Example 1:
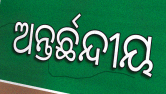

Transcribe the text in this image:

ଅନ୍ତର୍ଛନ୍ଦୀୟ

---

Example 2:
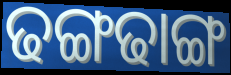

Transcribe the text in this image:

ଢଙ୍ଗଢାଙ୍ଗ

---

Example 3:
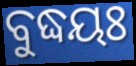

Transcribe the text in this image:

ବୁଦ୍ଧୟଃ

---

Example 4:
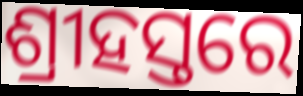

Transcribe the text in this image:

ଶ୍ରୀହସ୍ତରେ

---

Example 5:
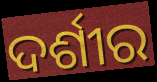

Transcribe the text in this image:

ଦର୍ଶୀର